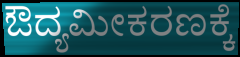
ಔದ್ಯಮೀಕರಣಕ್ಕೆ